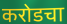
करोडचा